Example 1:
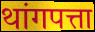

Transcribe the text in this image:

थांगपत्ता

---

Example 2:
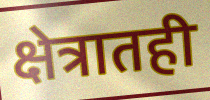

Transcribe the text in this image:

क्षेत्रातही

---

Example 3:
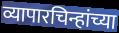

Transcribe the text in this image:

व्यापारचिन्हांच्या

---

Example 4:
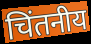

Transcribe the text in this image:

चिंतनीय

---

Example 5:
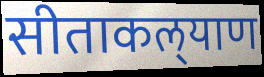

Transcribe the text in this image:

सीताकल्याण